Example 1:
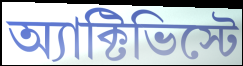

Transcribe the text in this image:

অ্যাক্টিভিস্টে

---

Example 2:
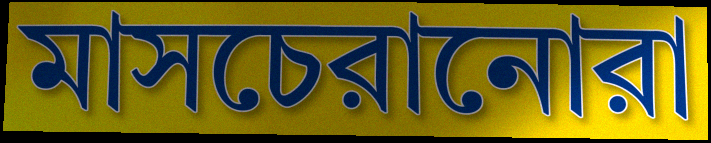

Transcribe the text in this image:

মাসচেরানোরা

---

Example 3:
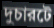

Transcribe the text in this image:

দুচারটে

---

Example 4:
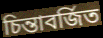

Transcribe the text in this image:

চিন্তাবর্জিত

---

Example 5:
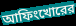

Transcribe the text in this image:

আফিংখোরের